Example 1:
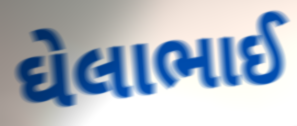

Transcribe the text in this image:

ઘેલાભાઈ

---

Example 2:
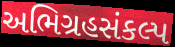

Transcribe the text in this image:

અભિગ્રહસંકલ્પ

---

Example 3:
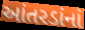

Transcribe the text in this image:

આંતરડાંનાં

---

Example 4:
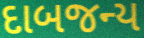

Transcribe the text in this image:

દાબજન્ય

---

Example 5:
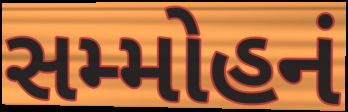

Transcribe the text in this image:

સમ્મોહનં